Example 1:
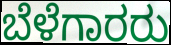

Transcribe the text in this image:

ಬೆಳೆಗಾರರು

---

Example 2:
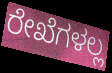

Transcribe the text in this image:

ರೇಖೆಗಳಲ್ಲ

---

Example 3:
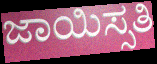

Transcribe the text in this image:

ಜಾಯಿಸ್ಸತಿ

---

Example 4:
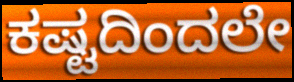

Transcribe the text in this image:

ಕಷ್ಟದಿಂದಲೇ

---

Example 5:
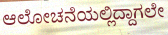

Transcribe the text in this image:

ಆಲೋಚನೆಯಲ್ಲಿದ್ದಾಗಲೇ